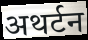
अथर्टन